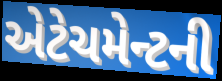
એટેચમેન્ટની